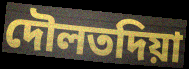
দৌলতদিয়া